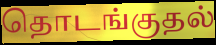
தொடங்குதல்